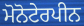
ਮੋਨੋਟੇਰਪੀਨ